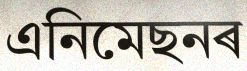
এনিমেছনৰ